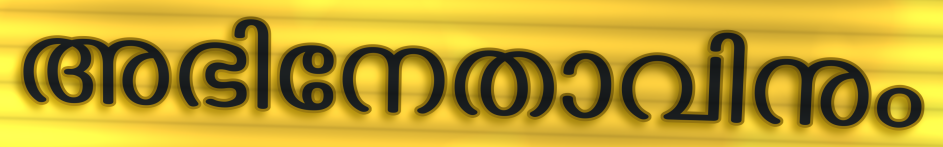
അഭിനേതാവിനും